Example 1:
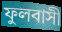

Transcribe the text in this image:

ফুলবাসী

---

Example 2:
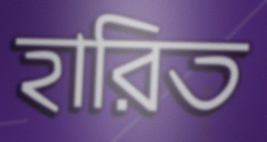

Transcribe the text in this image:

হারিত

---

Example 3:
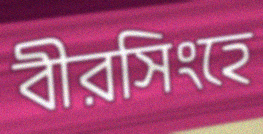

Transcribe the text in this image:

বীরসিংহে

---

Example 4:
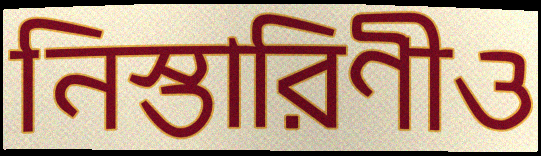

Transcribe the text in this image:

নিস্তারিণীও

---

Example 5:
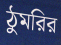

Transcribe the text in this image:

ঠুমরির